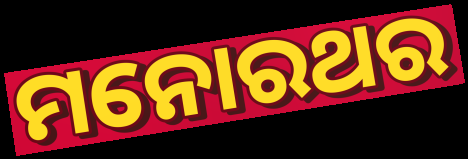
ମନୋରଥର